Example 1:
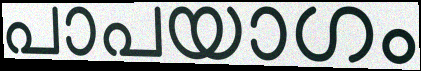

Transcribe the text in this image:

പാപയാഗം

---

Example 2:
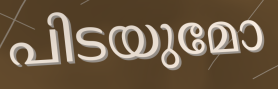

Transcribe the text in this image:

പിടയുമോ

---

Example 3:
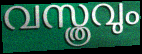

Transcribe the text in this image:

വസ്ത്രവും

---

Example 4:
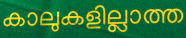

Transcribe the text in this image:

കാലുകളില്ലാത്ത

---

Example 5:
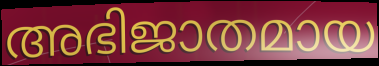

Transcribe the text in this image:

അഭിജാതമായ